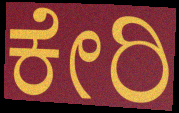
ಕೇರಿ